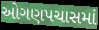
ઓગણપચાસમાં